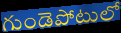
గుండెపోటులో